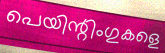
പെയിന്റിംഗുകളെ